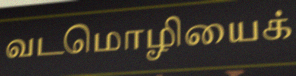
வடமொழியைக்